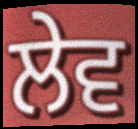
ਲੇਵ